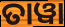
ତାୱା